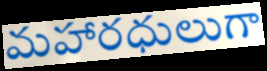
మహారధులుగా